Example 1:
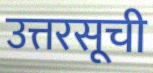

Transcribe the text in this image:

उत्तरसूची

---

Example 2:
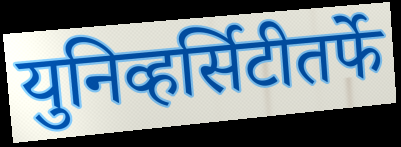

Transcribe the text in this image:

युनिव्हर्सिटीतर्फे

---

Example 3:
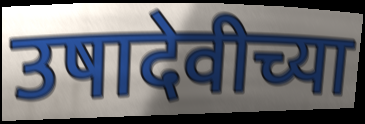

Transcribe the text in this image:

उषादेवीच्या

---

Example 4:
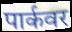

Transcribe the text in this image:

पार्कवर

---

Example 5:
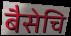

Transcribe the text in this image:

बैसेचि